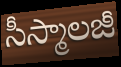
సీస్మాలజీ